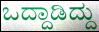
ಒದ್ದಾಡಿದ್ದು